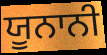
ਯੂਨਾਨੀ